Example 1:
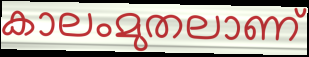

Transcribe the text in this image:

കാലംമുതലാണ്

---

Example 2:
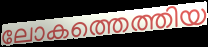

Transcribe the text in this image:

ലോകത്തെത്തിയ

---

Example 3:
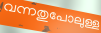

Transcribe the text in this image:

വന്നതുപോലുള്ള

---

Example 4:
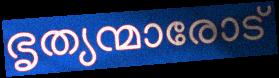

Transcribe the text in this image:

ഭൃത്യന്മാരോട്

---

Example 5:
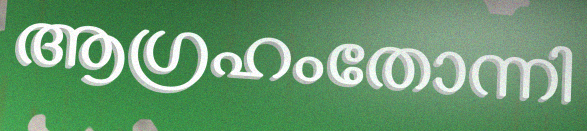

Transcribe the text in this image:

ആഗ്രഹംതോന്നി